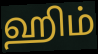
ஹிம்